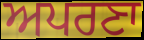
ਅਪਰਣਾ